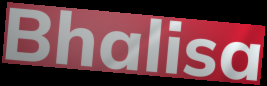
Bhalisa